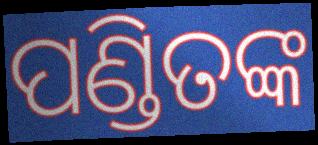
ପଣ୍ଡିତଙ୍କ